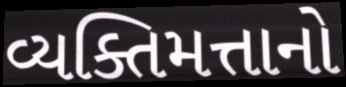
વ્યક્તિમત્તાનો